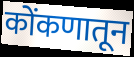
कोंकणातून